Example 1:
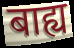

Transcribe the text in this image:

बाह्य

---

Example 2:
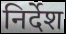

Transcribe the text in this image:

निर्देश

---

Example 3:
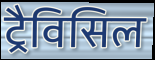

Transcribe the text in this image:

ट्रैविसिल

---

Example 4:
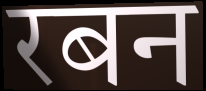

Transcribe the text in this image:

रबन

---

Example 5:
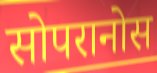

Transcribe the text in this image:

सोपरानोस